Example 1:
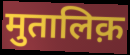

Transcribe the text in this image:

मुतालिक़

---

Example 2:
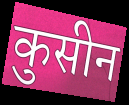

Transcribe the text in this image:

कुसीन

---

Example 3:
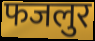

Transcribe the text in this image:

फजलुर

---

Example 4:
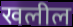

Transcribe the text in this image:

खलील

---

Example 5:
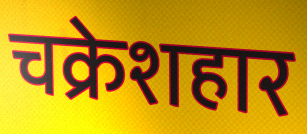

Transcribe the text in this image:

चक्रेशहार